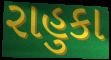
રાહુકા